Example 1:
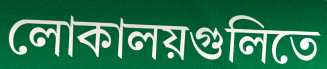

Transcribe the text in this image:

লোকালয়গুলিতে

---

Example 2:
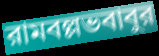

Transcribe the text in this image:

রামবল্লভবাবুর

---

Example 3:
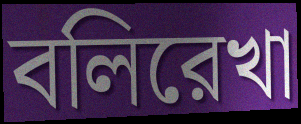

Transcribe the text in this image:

বলিরেখা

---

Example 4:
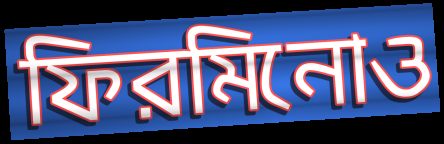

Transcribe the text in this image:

ফিরমিনোও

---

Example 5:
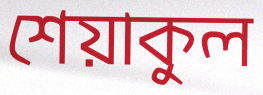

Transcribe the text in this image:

শেয়াকুল